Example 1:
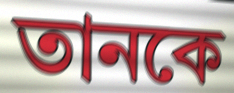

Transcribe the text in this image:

তানকে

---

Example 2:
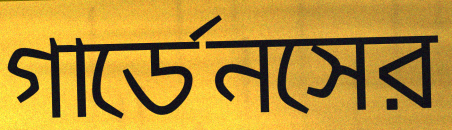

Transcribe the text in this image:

গার্ডেনসের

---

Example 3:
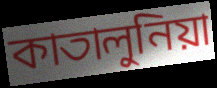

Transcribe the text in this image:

কাতালুনিয়া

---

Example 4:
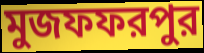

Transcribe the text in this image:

মুজফফরপুর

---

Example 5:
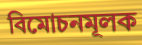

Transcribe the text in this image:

বিমোচনমূলক